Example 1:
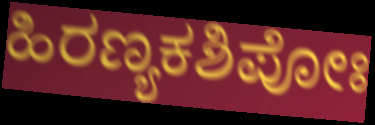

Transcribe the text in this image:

ಹಿರಣ್ಯಕಶಿಪೋಃ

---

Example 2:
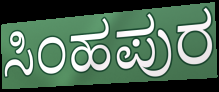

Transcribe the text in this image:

ಸಿಂಹಪುರ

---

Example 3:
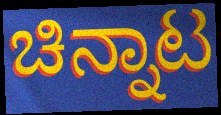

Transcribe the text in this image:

ಚಿನ್ನಾಟ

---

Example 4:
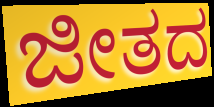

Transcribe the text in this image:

ಜೀತದ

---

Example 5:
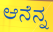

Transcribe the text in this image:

ಆನೆನ್ನ